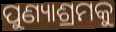
ପୁଣ୍ୟାଶ୍ରମକୁ